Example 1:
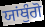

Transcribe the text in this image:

ਯਾਂਥੁੰਗੋ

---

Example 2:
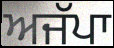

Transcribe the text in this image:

ਅਜੱਪਾ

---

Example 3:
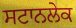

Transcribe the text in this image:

ਸਟਾਨਲੇਕ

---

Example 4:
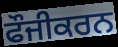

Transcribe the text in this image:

ਫੌਜੀਕਰਨ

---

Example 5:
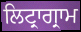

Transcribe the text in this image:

ਲਿਟ੍ਰਾਗ੍ਰਾਮ